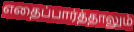
எதைப்பார்த்தாலும்